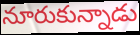
నూరుకున్నాడు